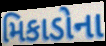
મિકાડોના